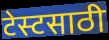
टेस्टसाठी